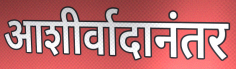
आशीर्वादानंतर